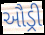
ઔડ્રી